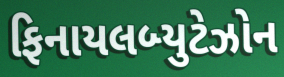
ફિનાયલબ્યુટેઝોન